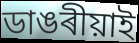
ডাঙৰীয়াই